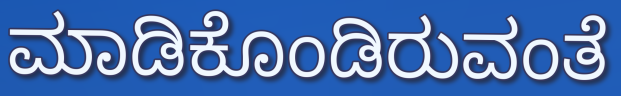
ಮಾಡಿಕೊಂಡಿರುವಂತೆ